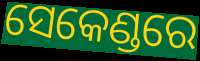
ସେକେଣ୍ଡରେ